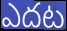
ఎదట